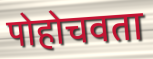
पोहोचवता